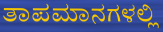
ತಾಪಮಾನಗಳಲ್ಲಿ